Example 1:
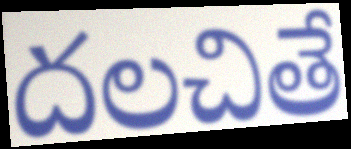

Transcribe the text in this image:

దలచితే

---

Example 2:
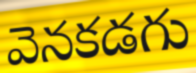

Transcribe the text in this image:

వెనకడగు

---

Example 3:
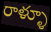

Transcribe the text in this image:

రాళ్ళూ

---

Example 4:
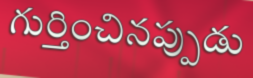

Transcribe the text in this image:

గుర్తించినప్పుడు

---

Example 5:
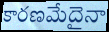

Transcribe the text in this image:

కారణమేదైనా